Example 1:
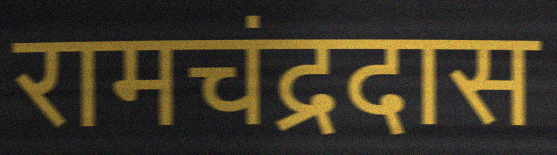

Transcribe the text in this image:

रामचंद्रदास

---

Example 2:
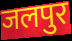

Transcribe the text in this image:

जलपुर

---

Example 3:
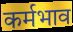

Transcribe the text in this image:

कर्मभाव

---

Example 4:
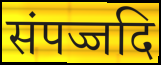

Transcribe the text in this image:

संपज्जदि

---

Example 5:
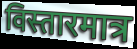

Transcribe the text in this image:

विस्तारमात्र